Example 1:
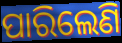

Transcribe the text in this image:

ପାରିଲେଣି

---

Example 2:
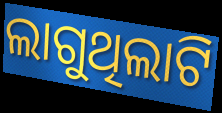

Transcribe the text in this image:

ଲାଗୁଥିଲାଟି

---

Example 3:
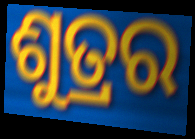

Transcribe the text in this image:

ଶୁତ୍ରର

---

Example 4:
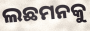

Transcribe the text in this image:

ଲଛମନକୁ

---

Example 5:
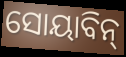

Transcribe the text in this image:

ସୋୟାବିନ୍